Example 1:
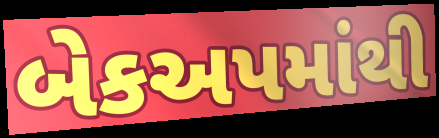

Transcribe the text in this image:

બેકઅપમાંથી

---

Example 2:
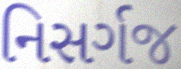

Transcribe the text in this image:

નિસર્ગજ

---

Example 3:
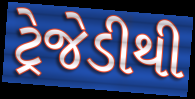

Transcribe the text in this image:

ટ્રેજેડીથી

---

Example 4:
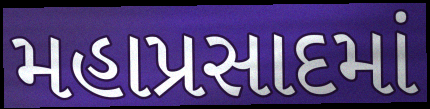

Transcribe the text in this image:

મહાપ્રસાદમાં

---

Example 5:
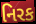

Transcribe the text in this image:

નિરક